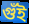
গুঁই